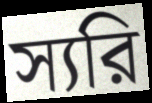
স্যরি